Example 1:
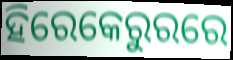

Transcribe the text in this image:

ହିରେକେରୁରରେ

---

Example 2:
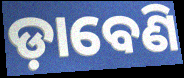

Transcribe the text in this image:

ଡ଼ାବେଣି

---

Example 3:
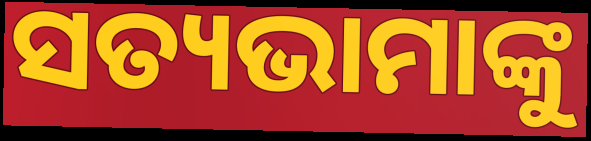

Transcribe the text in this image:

ସତ୍ୟଭାମାଙ୍କୁ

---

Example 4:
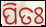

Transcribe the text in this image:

ପିତଃ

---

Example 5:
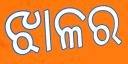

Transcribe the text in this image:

ଝାଳର